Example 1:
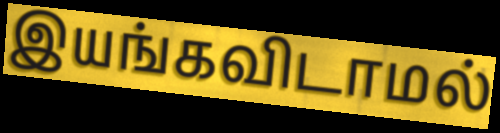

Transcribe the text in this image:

இயங்கவிடாமல்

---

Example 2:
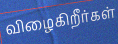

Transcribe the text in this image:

விழைகிறீர்கள்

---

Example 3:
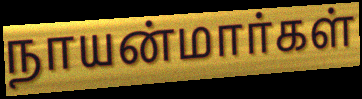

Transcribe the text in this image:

நாயன்மார்கள்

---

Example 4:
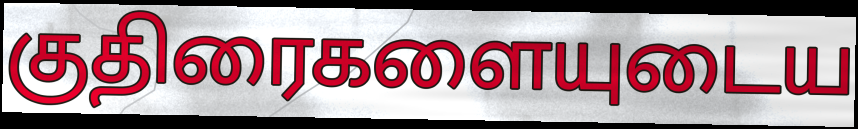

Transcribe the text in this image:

குதிரைகளையுடைய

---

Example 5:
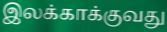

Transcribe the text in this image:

இலக்காக்குவது